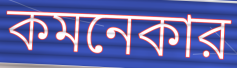
কমনেকার